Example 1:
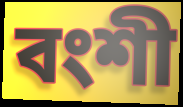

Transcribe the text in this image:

বংশী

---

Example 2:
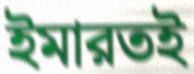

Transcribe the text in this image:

ইমারতই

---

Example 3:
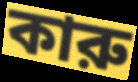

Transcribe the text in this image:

কারু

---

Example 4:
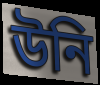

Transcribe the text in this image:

উনি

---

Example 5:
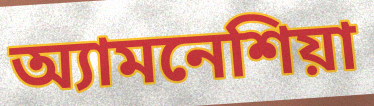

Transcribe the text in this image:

অ্যামনেশিয়া